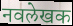
नवलेखक